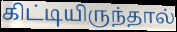
கிட்டியிருந்தால்